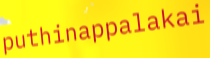
puthinappalakai